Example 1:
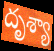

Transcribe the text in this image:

దృశ్యా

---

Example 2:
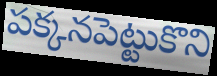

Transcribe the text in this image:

పక్కనపెట్టుకొని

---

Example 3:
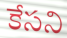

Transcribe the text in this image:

కేసని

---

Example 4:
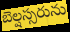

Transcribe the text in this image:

బెల్షస్సరును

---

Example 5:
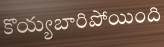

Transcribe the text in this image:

కొయ్యబారిపోయింది